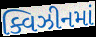
ક્વિઝીનમાં